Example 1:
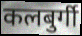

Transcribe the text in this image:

कलबुर्गी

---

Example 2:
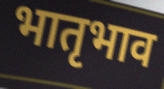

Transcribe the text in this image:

भातृभाव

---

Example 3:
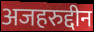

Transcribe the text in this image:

अजहरुद्दीन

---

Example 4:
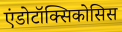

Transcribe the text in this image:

एंडोटॉक्सिकोसिस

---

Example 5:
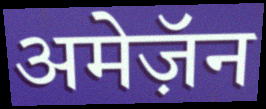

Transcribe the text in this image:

अमेज़ॅन